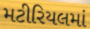
મટીરિયલમાં